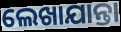
ଲେଖାଯାନ୍ତା